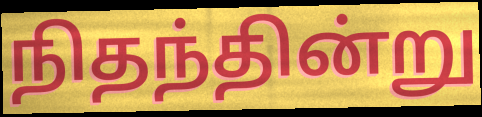
நிதந்தின்று